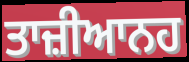
ਤਾਜ਼ੀਆਨਹ